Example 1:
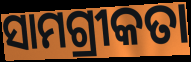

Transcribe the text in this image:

ସାମଗ୍ରୀକତା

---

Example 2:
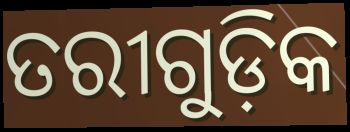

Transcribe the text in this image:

ତରୀଗୁଡ଼ିକ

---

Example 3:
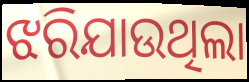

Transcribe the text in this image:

ଝରିଯାଉଥିଲା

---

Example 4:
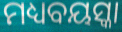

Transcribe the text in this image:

ମଧ୍ୟବୟସ୍କା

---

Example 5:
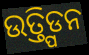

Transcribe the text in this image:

ଉତ୍ତ୍ପିଡନ